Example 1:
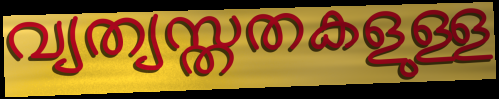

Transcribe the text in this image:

വ്യത്യസ്തതകളുള്ള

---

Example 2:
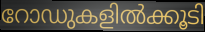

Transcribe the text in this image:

റോഡുകളിൽക്കൂടി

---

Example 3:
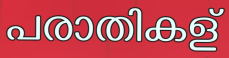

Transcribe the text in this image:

പരാതികള്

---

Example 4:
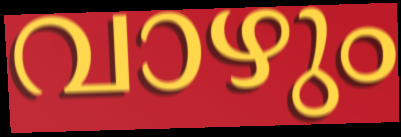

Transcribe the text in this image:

വാഴും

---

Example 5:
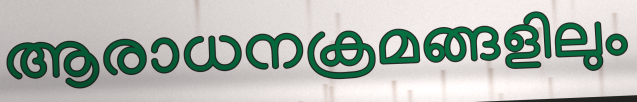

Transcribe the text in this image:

ആരാധനക്രമങ്ങളിലും